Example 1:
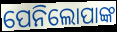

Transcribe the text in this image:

ପେନିଲୋପାଙ୍କ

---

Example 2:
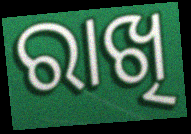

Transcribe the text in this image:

ରାଖି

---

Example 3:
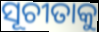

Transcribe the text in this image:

ସୂଚୀତାକୁ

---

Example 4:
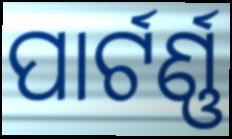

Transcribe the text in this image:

ପାର୍ଟର୍ଣ୍ଣ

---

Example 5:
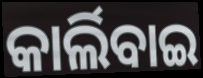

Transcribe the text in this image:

କାର୍ଲିବାଇ